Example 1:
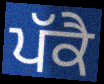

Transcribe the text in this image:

ਪੱਕੈ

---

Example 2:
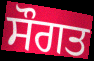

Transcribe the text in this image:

ਸੌਗਤ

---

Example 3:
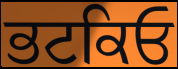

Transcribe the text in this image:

ਭਟਕਿਓ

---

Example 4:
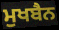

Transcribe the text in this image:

ਮੁਖਬੈਨ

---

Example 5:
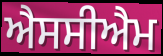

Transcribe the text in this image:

ਐਸਸੀਐਮ